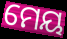
ମେୟ